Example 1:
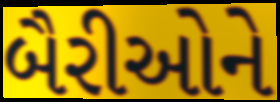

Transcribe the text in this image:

બૈરીઓને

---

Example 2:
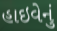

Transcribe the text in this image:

હાઇવેનું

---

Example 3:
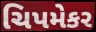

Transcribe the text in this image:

ચિપમેકર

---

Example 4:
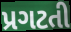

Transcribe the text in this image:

પ્રગટતી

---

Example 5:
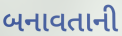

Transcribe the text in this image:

બનાવતાની